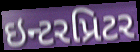
ઇન્ટરપ્રિટર